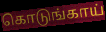
கொடுங்காய்